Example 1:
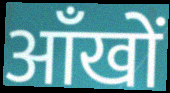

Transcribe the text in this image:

आँखों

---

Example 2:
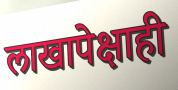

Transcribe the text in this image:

लाखापेक्षाही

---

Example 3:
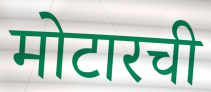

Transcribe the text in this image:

मोटारची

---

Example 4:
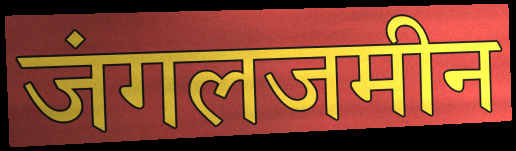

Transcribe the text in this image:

जंगलजमीन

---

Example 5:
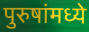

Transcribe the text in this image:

पुरुषांमध्ये